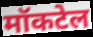
मॉकटेल